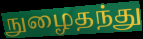
நுழைதந்து